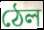
ঠেল